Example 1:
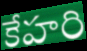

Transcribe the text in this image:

కేహరి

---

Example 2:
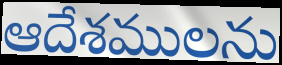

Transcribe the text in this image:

ఆదేశములను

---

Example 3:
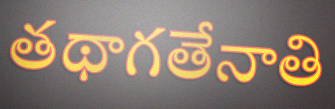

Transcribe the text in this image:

తథాగతేనాతి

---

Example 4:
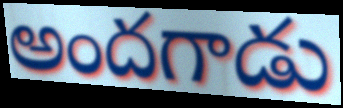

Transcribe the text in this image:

అందగాడు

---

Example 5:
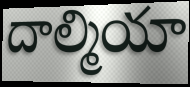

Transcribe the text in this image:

దాల్మియా